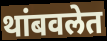
थांबवलेत